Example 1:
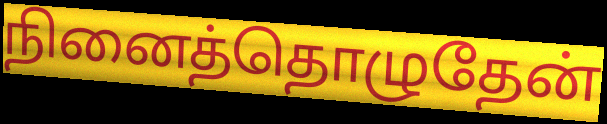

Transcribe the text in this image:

நினைத்தொழுதேன்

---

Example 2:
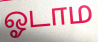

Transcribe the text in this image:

ஓடாம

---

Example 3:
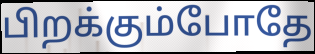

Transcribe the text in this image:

பிறக்கும்போதே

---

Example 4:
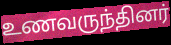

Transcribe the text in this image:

உணவருந்தினர்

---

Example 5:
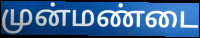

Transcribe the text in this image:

முன்மண்டை